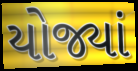
યોજ્યાં